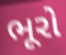
ભૂરો